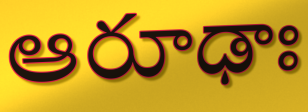
ఆరూఢాః